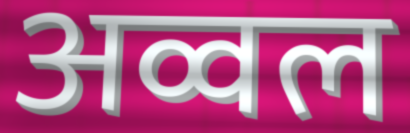
अव्वल